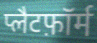
प्लैटफ़ॉर्म